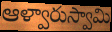
ఆళ్వారుస్వామి